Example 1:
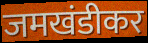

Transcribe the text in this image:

जमखंडीकर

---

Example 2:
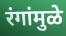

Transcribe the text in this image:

रंगांमुळे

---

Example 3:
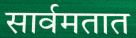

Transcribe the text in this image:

सार्वमतात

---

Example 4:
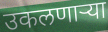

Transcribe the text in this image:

उकलणाऱ्या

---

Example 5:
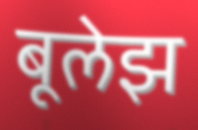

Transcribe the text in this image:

बूलेझ